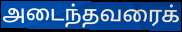
அடைந்தவரைக்